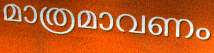
മാത്രമാവണം